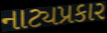
નાટ્યપ્રકાર